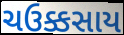
ચઉક્કસાય